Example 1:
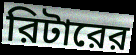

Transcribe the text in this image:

রিটারের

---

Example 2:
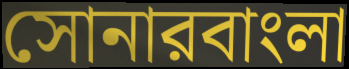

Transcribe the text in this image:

সোনারবাংলা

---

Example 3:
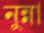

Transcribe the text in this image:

নুন্না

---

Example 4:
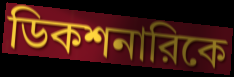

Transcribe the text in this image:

ডিকশনারিকে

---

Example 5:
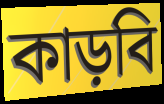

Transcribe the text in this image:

কাড়বি